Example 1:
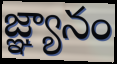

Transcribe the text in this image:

జ్ఞ్యానం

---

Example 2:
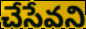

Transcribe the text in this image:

చేసేవని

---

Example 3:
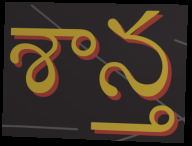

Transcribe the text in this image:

శాన్త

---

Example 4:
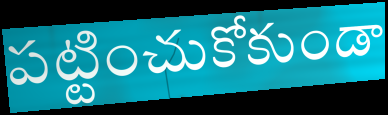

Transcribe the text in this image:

పట్టించుకోకుండా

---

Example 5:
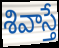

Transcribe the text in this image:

శివాస్తే